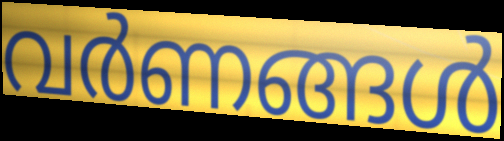
വർണങ്ങൾ